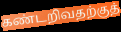
கண்டறிவதற்குத்